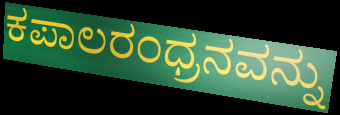
ಕಪಾಲರಂಧ್ರನವನ್ನು